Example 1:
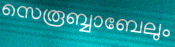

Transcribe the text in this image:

സെരൂബ്ബാബേലും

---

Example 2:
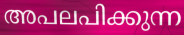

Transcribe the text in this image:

അപലപിക്കുന്ന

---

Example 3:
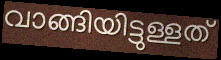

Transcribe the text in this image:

വാങ്ങിയിട്ടുള്ളത്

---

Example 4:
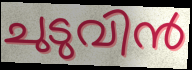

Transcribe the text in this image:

ചുടുവിൻ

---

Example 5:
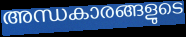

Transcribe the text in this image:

അന്ധകാരങ്ങളുടെ